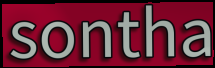
sontha